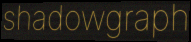
shadowgraph